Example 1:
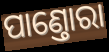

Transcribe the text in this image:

ପାଣ୍ତୋରା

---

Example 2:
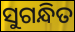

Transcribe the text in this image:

ସୁଗନ୍ଧିତ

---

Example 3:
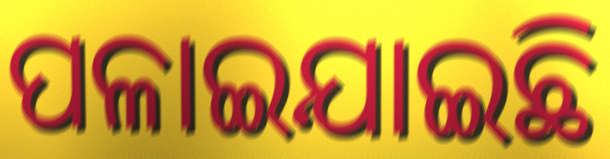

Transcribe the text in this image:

ପଳାଇଯାଇଛି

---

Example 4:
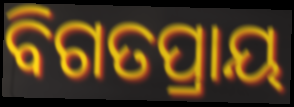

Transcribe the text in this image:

ବିଗତପ୍ରାୟ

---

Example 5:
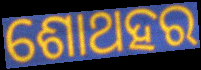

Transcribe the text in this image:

ଶୋଥହର